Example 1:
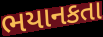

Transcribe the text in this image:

ભયાનકતા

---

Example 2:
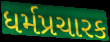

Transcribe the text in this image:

ધર્મપ્રચારક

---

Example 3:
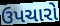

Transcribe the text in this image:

ઉપચારો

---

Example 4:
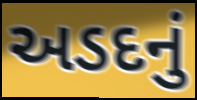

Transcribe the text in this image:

અડદનું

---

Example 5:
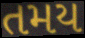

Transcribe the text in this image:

તમય